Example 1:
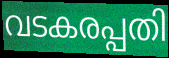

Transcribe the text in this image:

വടകരപ്പതി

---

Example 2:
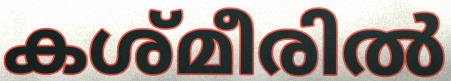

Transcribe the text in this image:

കശ്മീരിൽ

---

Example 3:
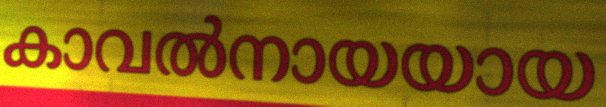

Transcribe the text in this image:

കാവൽനായയായ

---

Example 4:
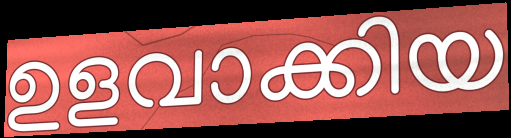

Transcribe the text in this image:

ഉളവാക്കിയ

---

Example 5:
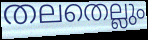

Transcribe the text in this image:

തലതെല്ലും